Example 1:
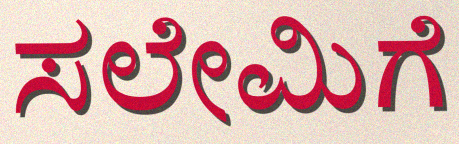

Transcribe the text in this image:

ಸಲೇಮಿಗೆ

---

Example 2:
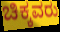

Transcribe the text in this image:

ಚಿಕ್ಕವರು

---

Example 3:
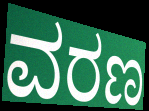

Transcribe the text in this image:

ವರಣ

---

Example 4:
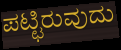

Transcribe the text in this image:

ಪಟ್ಟಿರುವುದು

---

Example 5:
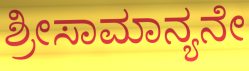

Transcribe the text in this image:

ಶ್ರೀಸಾಮಾನ್ಯನೇ